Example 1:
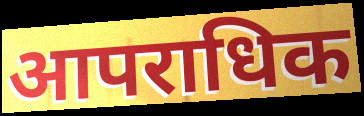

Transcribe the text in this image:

आपराधिक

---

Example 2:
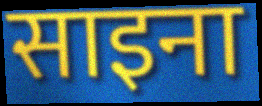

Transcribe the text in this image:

साइना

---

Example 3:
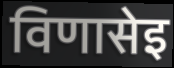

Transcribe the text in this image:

विणासेइ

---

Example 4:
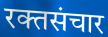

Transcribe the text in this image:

रक्तसंचार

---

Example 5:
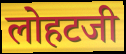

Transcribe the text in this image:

लोहटजी